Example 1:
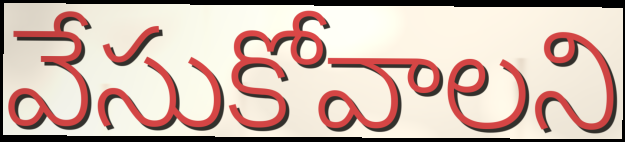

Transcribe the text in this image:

వేసుకోవాలని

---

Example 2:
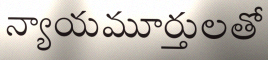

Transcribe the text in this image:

న్యాయమూర్తులతో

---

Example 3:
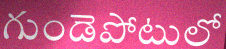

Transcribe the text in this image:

గుండెపోటులో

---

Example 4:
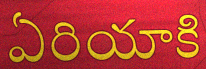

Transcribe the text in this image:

ఏరియాకి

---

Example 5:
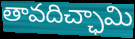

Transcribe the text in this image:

తావదిచ్ఛామి